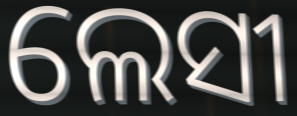
ଲେସୀ